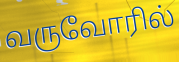
வருவோரில்